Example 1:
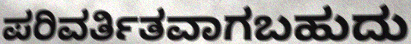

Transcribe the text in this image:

ಪರಿವರ್ತಿತವಾಗಬಹುದು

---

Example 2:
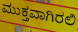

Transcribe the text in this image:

ಮುಕ್ತವಾಗಿರಲಿ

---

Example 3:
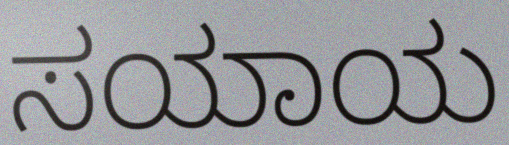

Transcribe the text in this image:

ಸಯಾಯ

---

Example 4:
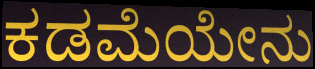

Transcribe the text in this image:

ಕಡಮೆಯೇನು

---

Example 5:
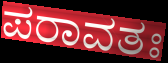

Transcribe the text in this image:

ಪರಾವತಃ